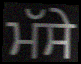
ਮੱਸੇ